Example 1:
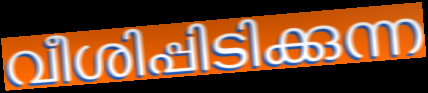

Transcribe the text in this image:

വീശിപ്പിടിക്കുന്ന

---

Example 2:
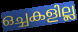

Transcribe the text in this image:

ഒച്ചകളില്ല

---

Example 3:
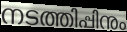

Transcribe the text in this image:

നടത്തിപ്പിനും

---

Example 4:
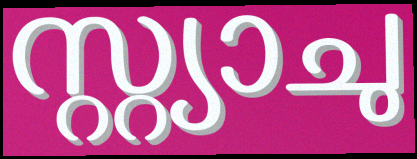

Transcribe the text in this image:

സ്റ്റ്യാചു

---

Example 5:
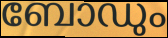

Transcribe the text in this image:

ബോഡും